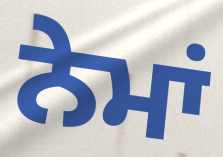
ਨੇਮਾਂ